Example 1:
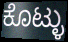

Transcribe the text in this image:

ಕೊಟ್ಳು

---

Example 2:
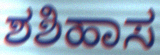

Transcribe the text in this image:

ಶಶಿಹಾಸ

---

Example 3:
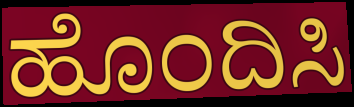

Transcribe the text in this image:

ಹೊಂದಿಸಿ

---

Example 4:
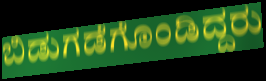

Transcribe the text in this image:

ಬಿಡುಗಡೆಗೊಂಡಿದ್ದರು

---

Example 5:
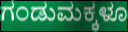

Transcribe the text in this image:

ಗಂಡುಮಕ್ಕಳೂ